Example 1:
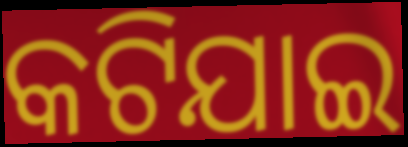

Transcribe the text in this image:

କଟିଯାଇ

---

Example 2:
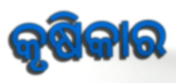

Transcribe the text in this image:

କୃଷିକାର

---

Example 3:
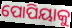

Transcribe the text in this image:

ପୋପିୟାକୁ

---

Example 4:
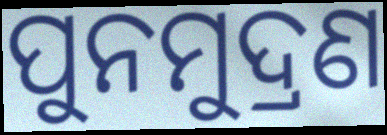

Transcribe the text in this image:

ପୁନମୁଦ୍ରଣ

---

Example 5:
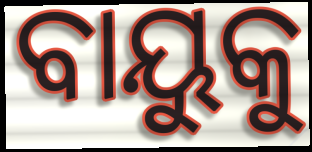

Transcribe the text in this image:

ବାୟୁକୁ